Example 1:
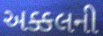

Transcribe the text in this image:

અક્કલની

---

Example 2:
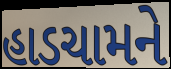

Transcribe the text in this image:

હાડચામને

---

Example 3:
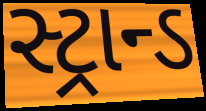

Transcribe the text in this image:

સ્ટ્રાન્ડ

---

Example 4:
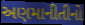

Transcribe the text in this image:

અણમાનીતીનો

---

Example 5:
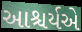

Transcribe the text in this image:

આશ્ચર્યએ